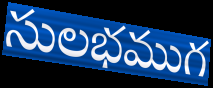
సులభముగ